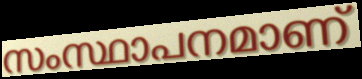
സംസ്ഥാപനമാണ്